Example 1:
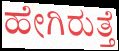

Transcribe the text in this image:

ಹೇಗಿರುತ್ತೆ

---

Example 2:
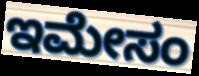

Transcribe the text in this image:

ಇಮೇಸಂ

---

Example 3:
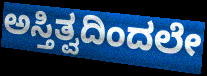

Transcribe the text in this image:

ಅಸ್ತಿತ್ವದಿಂದಲೇ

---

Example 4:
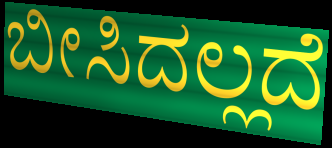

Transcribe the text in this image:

ಬೀಸಿದಲ್ಲದೆ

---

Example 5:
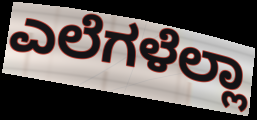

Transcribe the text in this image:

ಎಲೆಗಳೆಲ್ಲಾ